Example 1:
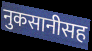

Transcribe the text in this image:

नुकसानीसह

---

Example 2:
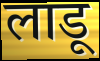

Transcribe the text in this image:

लाडू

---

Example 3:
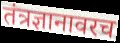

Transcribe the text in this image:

तंत्रज्ञानावरच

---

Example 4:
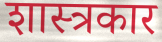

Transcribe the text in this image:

शास्त्रकार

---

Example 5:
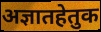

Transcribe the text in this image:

अज्ञातहेतुक